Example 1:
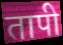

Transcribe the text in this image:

तापी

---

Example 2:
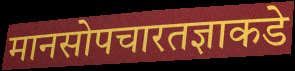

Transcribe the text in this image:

मानसोपचारतज्ञाकडे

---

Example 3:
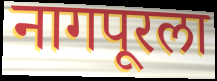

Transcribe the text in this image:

नागपूरला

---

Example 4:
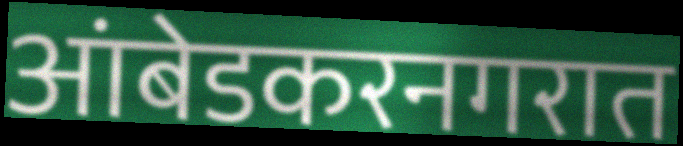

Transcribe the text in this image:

आंबेडकरनगरात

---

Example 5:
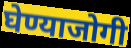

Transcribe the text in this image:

घेण्याजोगी